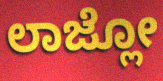
ಲಾಜ್ಲೋ